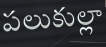
పలుకుల్లా